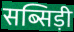
सब्सिड़ी